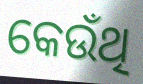
କେଉଁଥି